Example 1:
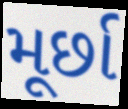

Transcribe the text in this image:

મૂર્છા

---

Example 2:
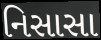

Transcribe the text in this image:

નિસાસા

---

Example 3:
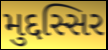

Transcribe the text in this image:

મુદ્દસ્સિર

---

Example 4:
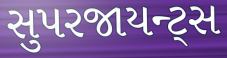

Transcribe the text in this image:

સુપરજાયન્ટ્સ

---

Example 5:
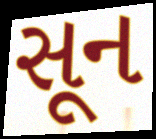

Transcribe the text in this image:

સૂન